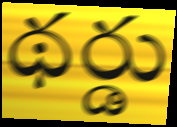
థర్డు